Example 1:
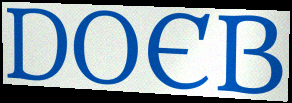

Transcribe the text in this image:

DOEB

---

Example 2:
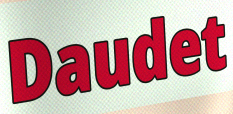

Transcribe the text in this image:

Daudet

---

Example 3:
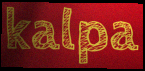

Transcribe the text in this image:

kalpa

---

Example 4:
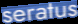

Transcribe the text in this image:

seratus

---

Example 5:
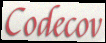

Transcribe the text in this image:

Codecov